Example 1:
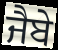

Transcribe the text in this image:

ਜੈਬੇ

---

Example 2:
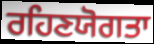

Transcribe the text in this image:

ਰਹਿਣਯੋਗਤਾ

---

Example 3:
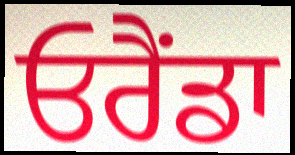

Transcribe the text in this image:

ਓਰੈਂਡਾ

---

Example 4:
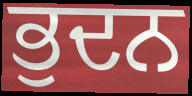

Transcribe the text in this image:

ਭੁਦਨ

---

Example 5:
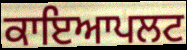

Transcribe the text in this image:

ਕਾਇਆਪਲਟ